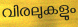
വിരലുകളും